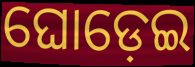
ଘୋଡ଼େଇ